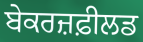
ਬੇਕਰਜ਼ਫ਼ੀਲਡ